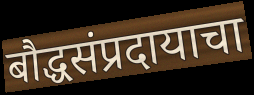
बौद्धसंप्रदायाचा